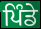
ਪਿੰਡੇ